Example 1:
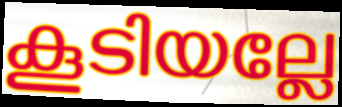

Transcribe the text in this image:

കൂടിയല്ലേ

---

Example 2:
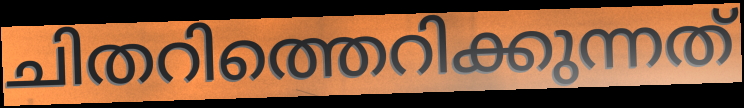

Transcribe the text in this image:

ചിതറിത്തെറിക്കുന്നത്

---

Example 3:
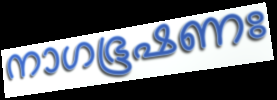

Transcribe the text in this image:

നാഗഭൂഷണഃ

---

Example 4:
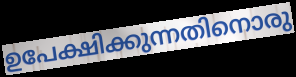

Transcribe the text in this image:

ഉപേക്ഷിക്കുന്നതിനൊരു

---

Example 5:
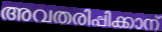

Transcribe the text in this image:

അവതരിപ്പിക്കാന്